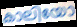
കാലിയോ